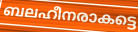
ബലഹീനരാകട്ടെ